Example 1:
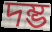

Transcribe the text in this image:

দম্ভ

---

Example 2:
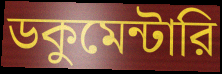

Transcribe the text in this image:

ডকুমেন্টারি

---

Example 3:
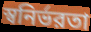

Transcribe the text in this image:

স্বনির্ভরতা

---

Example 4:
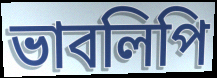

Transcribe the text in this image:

ভাবলিপি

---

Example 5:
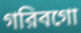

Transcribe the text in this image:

গরিবগো